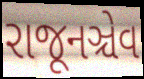
રાજૂનઞ્ચેવ